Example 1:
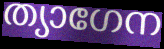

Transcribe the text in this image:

ത്യാഗേന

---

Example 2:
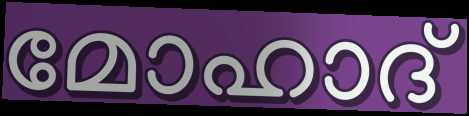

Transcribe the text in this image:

മോഹാദ്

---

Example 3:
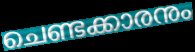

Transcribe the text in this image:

ചെണ്ടക്കാരനും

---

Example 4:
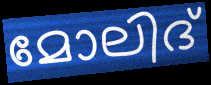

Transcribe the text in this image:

മോലിദ്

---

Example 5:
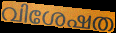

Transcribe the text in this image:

വിശേഷത